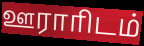
ஊராரிடம்